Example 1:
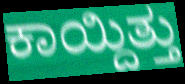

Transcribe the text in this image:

ಕಾಯ್ದಿತ್ತು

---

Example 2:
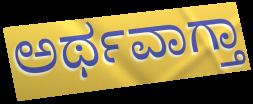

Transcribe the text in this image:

ಅರ್ಥವಾಗ್ತಾ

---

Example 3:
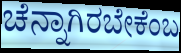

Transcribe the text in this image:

ಚೆನ್ನಾಗಿರಬೇಕೆಂಬ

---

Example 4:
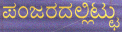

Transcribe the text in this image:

ಪಂಜರದಲ್ಲಿಟ್ಟು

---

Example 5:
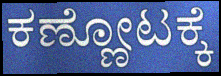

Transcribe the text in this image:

ಕಣ್ಣೋಟಕ್ಕೆ